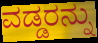
ವಡ್ಡರನ್ನು